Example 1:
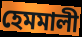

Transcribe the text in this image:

হেমমালী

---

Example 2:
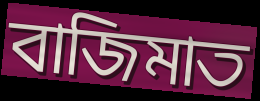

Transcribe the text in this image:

বাজিমাত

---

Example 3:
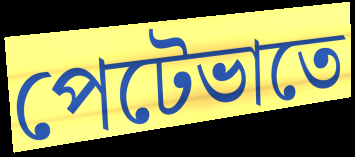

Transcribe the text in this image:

পেটেভাতে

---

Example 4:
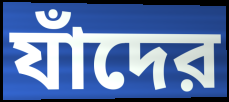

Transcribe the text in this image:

যাঁদের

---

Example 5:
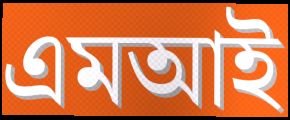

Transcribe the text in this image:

এমআই